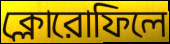
ক্লোরোফিলে